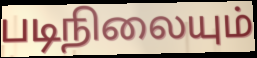
படிநிலையும்